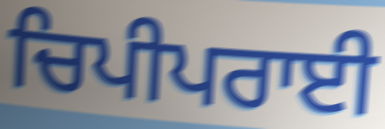
ਚਿਪੀਪਰਾਈ